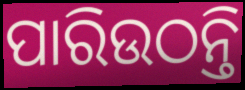
ପାରିଉଠନ୍ତି